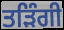
ਤੜਿੰਗੀ